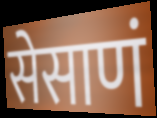
सेसाणं